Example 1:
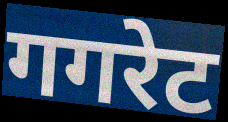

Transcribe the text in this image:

गगरेट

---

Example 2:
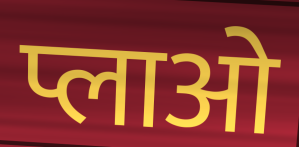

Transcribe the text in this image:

प्लाओ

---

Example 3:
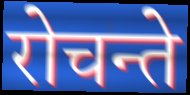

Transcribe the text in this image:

रोचन्ते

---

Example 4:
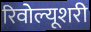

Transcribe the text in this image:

रिवोल्यूशरी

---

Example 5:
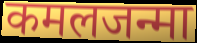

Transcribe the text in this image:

कमलजन्मा